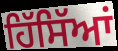
ਹਿੱਸਿੱਆਂ